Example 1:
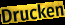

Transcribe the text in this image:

Drucken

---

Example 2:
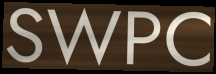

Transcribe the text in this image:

SWPC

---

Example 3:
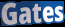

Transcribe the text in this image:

Gates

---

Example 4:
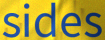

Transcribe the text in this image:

sides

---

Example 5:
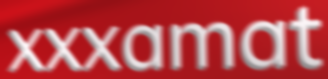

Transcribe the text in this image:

xxxamat